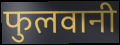
फुलवानी